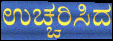
ಉಚ್ಚರಿಸಿದ